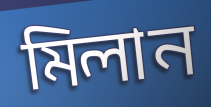
মিলান